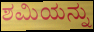
ಶಮಿಯನ್ನು